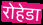
रोहेडा